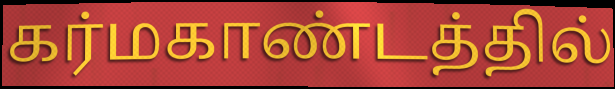
கர்மகாண்டத்தில்